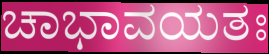
ಚಾಭಾವಯತಃ